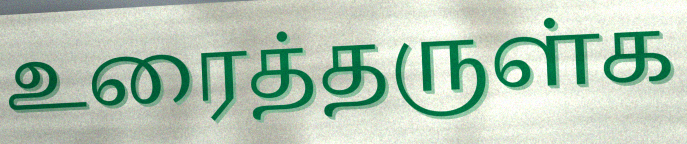
உரைத்தருள்க